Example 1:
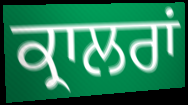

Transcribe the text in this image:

ਕ੍ਰਾਲਰਾਂ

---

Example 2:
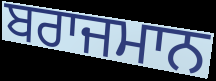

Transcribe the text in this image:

ਬਰਾਜਮਾਨ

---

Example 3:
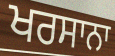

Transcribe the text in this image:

ਖਰਸਾਨਾ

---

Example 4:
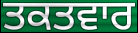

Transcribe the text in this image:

ਤਕਤਵਾਰ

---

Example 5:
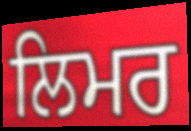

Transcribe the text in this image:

ਲਿਮਰ